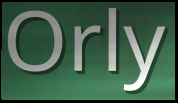
Orly